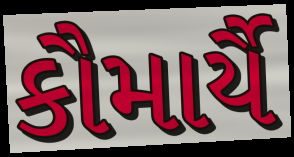
કૌમાર્યૈ